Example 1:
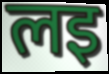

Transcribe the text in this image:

लइ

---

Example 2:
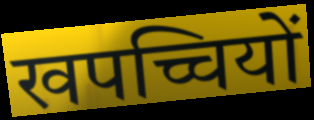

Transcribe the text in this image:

खपच्चियों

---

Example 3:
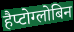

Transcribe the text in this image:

हैप्टोग्लोबिन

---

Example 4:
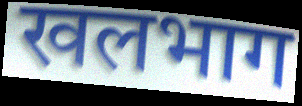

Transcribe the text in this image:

खलभाग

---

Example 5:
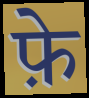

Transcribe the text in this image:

फ़े